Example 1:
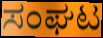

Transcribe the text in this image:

ಸಂಘಟ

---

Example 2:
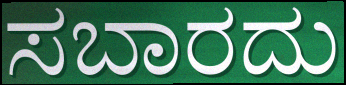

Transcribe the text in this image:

ಸಬಾರದು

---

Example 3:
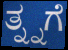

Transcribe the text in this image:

ತ್ನ್ನಗೆ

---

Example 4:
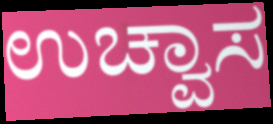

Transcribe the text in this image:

ಉಚ್ವಾಸ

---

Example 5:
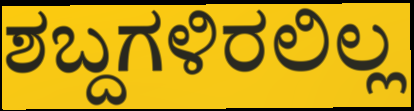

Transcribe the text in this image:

ಶಬ್ದಗಳಿರಲಿಲ್ಲ